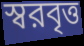
স্বরবৃত্ত